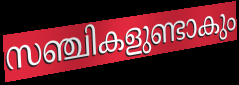
സഞ്ചികളുണ്ടാകും